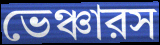
ভেঞ্চারস